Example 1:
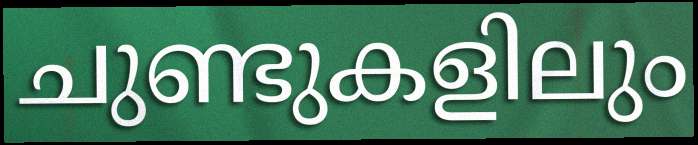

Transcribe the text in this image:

ചുണ്ടുകളിലും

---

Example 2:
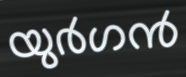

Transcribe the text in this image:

യുർഗൻ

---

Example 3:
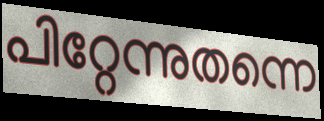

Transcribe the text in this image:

പിറ്റേന്നുതന്നെ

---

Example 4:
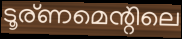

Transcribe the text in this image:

ടൂര്ണമെന്റിലെ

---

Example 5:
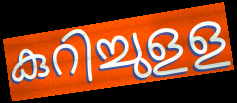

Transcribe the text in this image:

കുറിച്ചുളള